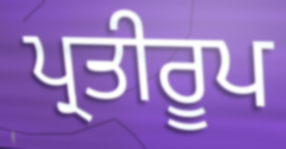
ਪ੍ਰਤੀਰੂਪ